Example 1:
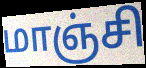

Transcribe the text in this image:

மாஞ்சி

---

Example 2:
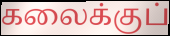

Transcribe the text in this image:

கலைக்குப்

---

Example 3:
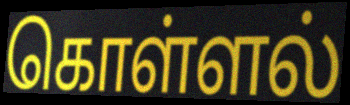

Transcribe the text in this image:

கொள்ளல்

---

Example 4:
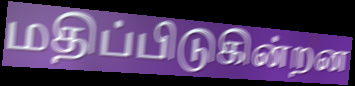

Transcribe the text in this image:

மதிப்பிடுகின்றன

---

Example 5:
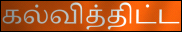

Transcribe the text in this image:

கல்வித்திட்ட